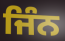
ਜਿੰਨ